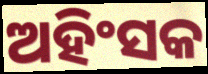
ଅହିଂସକ